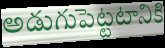
అడుగుపెట్టటానికి